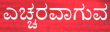
ಎಚ್ಚರವಾಗುವ